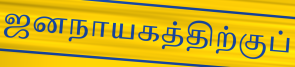
ஜனநாயகத்திற்குப்